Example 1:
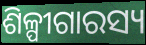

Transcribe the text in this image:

ଶିଳ୍ପୀଗାରସ୍ୟ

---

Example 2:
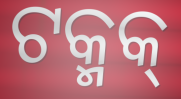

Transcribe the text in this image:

ଟକ୍ମକ୍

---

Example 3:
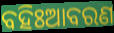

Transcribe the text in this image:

ବହିଃଆବରଣ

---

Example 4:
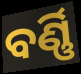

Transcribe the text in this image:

ବର୍ଣ୍ଣି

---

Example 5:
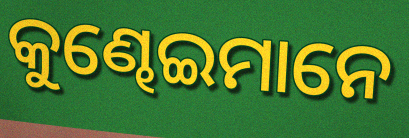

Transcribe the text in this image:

କୁଣ୍ଢେଇମାନେ